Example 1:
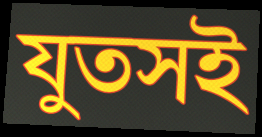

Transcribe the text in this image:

যুতসই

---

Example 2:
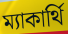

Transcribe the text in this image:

ম্যাকার্থি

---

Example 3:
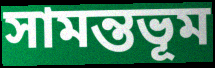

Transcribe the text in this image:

সামন্তভূম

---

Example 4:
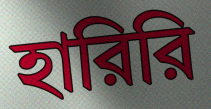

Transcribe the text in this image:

হারিরি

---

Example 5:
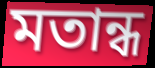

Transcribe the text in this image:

মতান্ধ